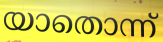
യാതൊന്ന്